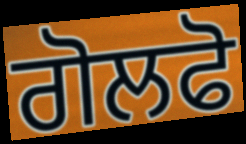
ਗੋਲਫੋ